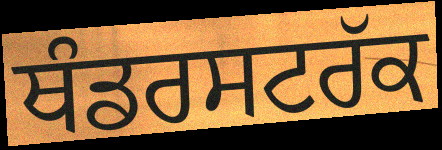
ਥੰਡਰਸਟਰੱਕ